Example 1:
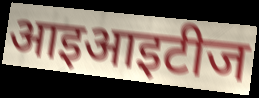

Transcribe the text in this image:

आइआइटीज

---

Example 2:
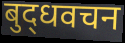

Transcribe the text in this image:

बुद्धवचन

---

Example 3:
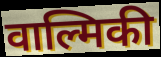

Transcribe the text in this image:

वाल्मिकी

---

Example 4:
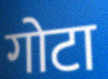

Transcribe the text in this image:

गोटा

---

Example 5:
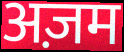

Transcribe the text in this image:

अज़म